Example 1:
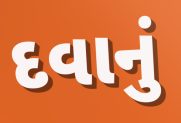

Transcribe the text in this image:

દવાનું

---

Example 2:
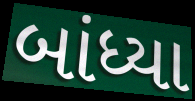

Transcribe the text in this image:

બાંધ્યા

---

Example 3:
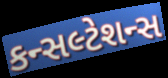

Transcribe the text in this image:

કન્સલ્ટેશન્સ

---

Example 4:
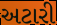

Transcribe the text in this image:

અટારી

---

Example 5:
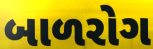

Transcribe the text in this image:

બાળરોગ